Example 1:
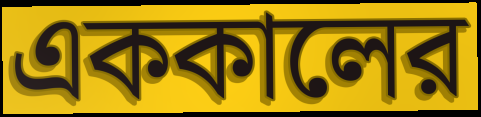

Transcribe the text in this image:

এককালের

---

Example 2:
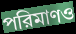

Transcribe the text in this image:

পরিমাণও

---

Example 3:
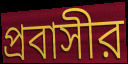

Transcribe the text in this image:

প্রবাসীর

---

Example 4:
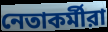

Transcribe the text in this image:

নেতাকর্মীরা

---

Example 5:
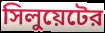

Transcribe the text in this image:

সিলুয়েটের